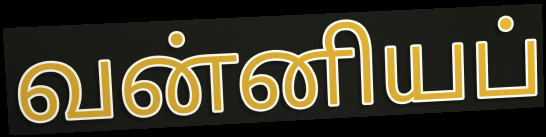
வன்னியப்